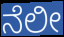
ನೆಲೀ